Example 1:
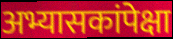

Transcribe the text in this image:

अभ्यासकांपेक्षा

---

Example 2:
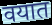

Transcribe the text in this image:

वयात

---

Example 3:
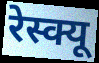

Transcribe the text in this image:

रेस्क्यू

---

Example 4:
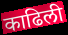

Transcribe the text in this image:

काढिली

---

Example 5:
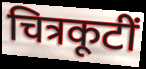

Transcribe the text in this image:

चित्रकूटीं